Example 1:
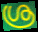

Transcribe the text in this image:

ശ്ര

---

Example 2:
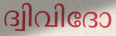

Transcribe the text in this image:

ദ്വിവിദോ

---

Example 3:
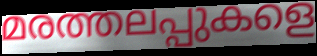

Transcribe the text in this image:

മരത്തലപ്പുകളെ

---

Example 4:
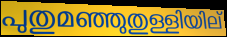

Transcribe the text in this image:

പുതുമഞ്ഞുതുള്ളിയില്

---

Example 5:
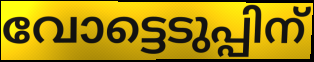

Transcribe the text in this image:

വോട്ടെടുപ്പിന്